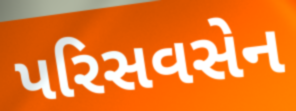
પરિસવસેન